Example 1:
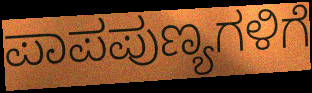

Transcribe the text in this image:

ಪಾಪಪುಣ್ಯಗಳಿಗೆ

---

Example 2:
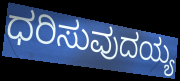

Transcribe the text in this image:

ಧರಿಸುವುದಯ್ಯ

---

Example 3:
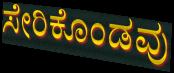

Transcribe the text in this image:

ಸೇರಿಕೊಂಡವು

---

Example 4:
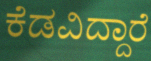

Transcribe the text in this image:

ಕೆಡವಿದ್ದಾರೆ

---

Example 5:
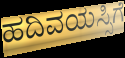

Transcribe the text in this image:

ಹದಿವಯಸ್ಸಿಗೆ